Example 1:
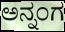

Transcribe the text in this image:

ಅನ್ನಂಗ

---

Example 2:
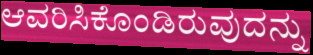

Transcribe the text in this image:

ಆವರಿಸಿಕೊಂಡಿರುವುದನ್ನು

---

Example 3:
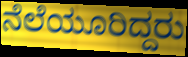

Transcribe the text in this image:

ನೆಲೆಯೂರಿದ್ದರು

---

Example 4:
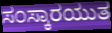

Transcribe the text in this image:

ಸಂಸ್ಕಾರಯುತ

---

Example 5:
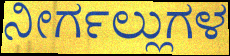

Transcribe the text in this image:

ನೀರ್ಗಲ್ಲುಗಳ